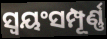
ସ୍ବୟଂସମ୍ପୂର୍ଣ୍ଣ